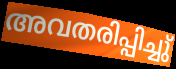
അവതരിപ്പിച്ചു്